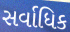
સર્વાધિક